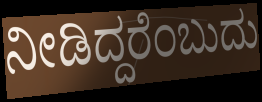
ನೀಡಿದ್ದರೆಂಬುದು